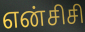
என்சிசி